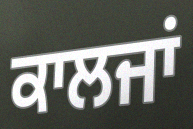
ਕਾਲਜਾਂ